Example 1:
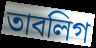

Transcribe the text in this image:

তাবলিগ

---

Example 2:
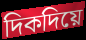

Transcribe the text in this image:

দিকদিয়ে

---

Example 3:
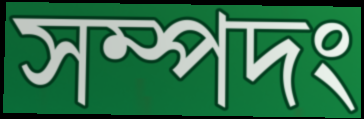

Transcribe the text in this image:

সম্পদং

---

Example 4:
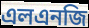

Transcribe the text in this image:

এলএনজি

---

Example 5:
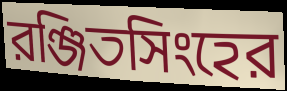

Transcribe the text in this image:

রঞ্জিতসিংহের